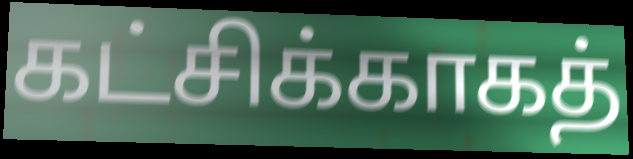
கட்சிக்காகத்